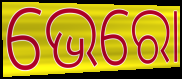
ଭେରୋ